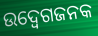
ଉଦ୍ବେଗଜନକ